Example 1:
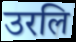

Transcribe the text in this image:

उरलि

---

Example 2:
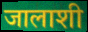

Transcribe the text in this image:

जालाशी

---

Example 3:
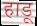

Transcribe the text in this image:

हाडू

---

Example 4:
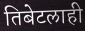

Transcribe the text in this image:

तिबेटलाही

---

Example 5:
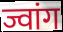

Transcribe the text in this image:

ज्वांग